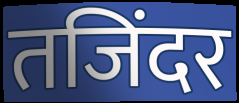
तजिंदर